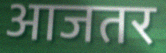
आजतर